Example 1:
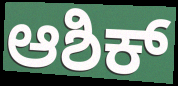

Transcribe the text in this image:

ಆಶಿಕ್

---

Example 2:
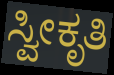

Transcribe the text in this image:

ಸ್ವೀಕೃತಿ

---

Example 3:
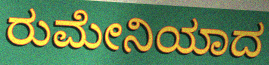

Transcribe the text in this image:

ರುಮೇನಿಯಾದ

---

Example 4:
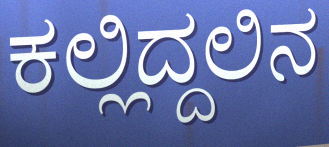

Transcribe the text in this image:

ಕಲ್ಲಿದ್ದಲಿನ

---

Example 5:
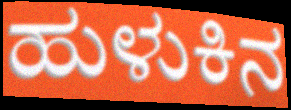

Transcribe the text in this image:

ಹುಳುಕಿನ